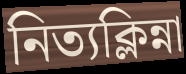
নিত্যক্লিন্না